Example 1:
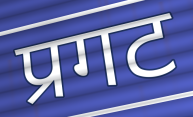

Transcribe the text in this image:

प्रगट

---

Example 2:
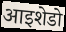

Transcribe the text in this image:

आइशेडो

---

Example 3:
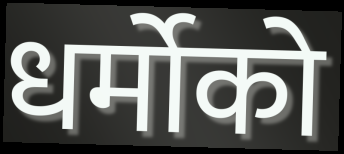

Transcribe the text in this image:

धर्मोको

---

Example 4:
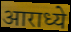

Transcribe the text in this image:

आराध्ये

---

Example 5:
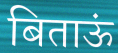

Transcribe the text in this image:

बिताऊं